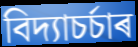
বিদ্যাচৰ্চাৰ